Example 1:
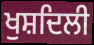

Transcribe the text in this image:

ਖੁਸ਼ਦਿਲੀ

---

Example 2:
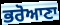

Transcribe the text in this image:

ਭਰੋਆਣਾ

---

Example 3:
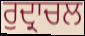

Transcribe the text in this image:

ਰੁਦ੍ਰਾਚਲ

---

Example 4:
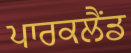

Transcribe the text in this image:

ਪਾਰਕਲੈਂਡ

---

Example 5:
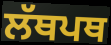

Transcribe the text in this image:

ਲੱਥਪਥ